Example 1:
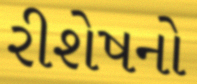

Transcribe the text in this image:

રીશેષનો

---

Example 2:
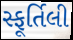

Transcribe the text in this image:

સ્ફૂર્તિલી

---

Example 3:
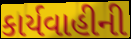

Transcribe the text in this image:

કાર્યવાહીની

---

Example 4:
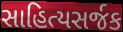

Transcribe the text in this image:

સાહિત્યસર્જક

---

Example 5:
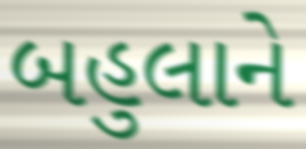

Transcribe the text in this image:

બહુલાને